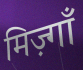
मिज़्गाँ